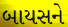
બાયસને